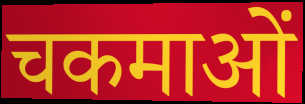
चकमाओं